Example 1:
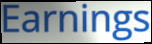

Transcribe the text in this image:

Earnings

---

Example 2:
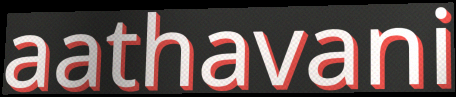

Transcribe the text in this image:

aathavani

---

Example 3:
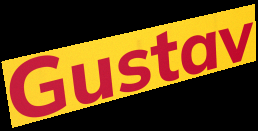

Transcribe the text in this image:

Gustav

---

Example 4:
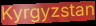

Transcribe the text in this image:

Kyrgyzstan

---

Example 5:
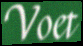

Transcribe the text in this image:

Voet